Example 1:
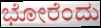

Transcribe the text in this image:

ಭೋರೆಂದು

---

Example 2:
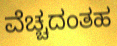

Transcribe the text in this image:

ವೆಚ್ಚದಂತಹ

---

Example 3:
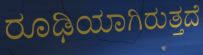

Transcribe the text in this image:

ರೂಢಿಯಾಗಿರುತ್ತದೆ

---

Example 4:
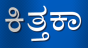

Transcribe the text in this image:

ಕಿತ್ತಕಾ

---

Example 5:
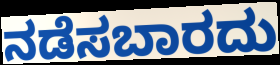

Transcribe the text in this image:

ನಡೆಸಬಾರದು